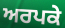
ਅਰਪਕੇ